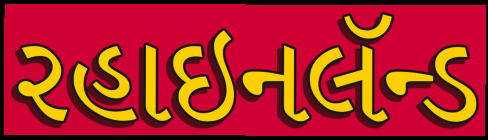
રહાઇનલૅન્ડ